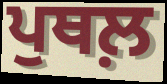
ਪੁਥਲ਼